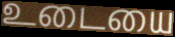
உடையை